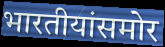
भारतीयांसमोर